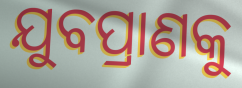
ଯୁବପ୍ରାଣକୁ